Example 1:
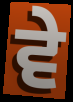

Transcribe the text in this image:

ਵੇ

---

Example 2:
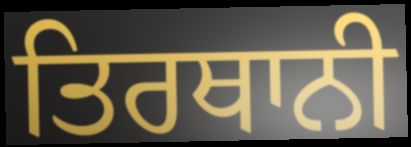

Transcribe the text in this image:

ਤਿਰਥਾਨੀ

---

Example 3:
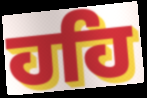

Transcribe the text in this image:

ਹਹਿ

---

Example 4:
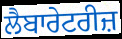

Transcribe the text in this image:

ਲੈਬਾਰੇਟਰੀਜ਼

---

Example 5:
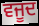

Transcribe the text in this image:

ਵਜੂਦ